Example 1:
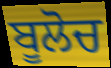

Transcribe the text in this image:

ਬੂਲੋਚ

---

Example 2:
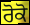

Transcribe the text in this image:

ਰੋਕੋ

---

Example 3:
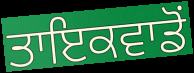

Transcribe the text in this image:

ਤਾਇਕਵਾਡੋਂ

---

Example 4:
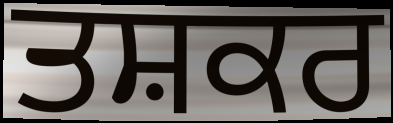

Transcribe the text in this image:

ਤਸ਼ਕਰ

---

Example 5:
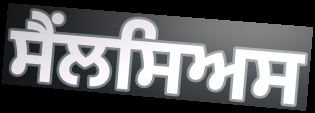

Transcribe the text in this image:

ਸੈਂਲਸਿਅਸ